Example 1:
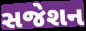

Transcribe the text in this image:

સજેશન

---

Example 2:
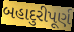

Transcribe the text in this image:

બહાદુરીપૂર્ણ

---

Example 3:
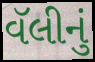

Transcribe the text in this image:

વૅલીનું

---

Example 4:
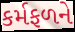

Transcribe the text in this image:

કર્મફળને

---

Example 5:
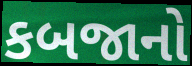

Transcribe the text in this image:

કબજાનો